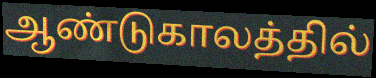
ஆண்டுகாலத்தில்